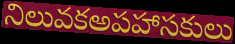
నిలువకఅపహాసకులు